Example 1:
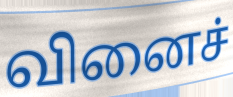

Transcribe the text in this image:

வினைச்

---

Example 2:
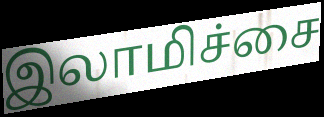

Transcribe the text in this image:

இலாமிச்சை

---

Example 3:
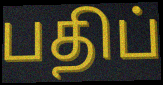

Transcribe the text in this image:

பதிப்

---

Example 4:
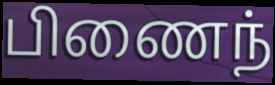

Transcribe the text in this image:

பிணைந்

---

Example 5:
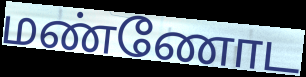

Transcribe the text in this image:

மண்ணோட